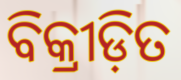
ବିକ୍ରୀଡ଼ିତ